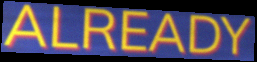
ALREADY